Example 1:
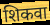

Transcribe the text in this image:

शिकवा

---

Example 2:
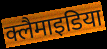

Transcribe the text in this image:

क्लैमाइडिया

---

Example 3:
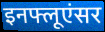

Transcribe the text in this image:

इनफ्लूएंसर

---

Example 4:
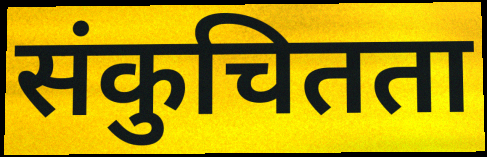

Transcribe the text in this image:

संकुचितता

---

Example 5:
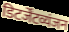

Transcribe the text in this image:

डिटर्जेंटव्यंजन